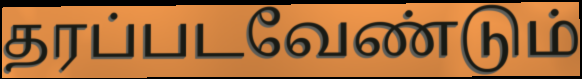
தரப்படவேண்டும்